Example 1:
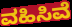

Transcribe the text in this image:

ವಹಿಸಿವೆ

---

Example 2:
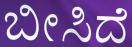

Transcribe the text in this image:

ಬೀಸಿದೆ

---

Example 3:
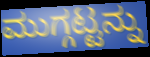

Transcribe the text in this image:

ಮುಗ್ಗಟ್ಟನ್ನು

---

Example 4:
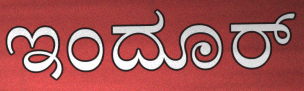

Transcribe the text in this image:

ಇಂದೂರ್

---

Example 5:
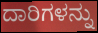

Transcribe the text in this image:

ದಾರಿಗಳನ್ನು